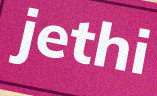
jethi